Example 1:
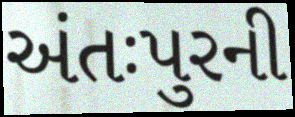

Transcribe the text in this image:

અંતઃપુરની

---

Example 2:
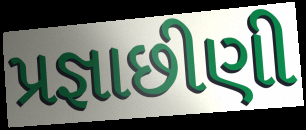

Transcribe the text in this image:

પ્રજ્ઞાછીણી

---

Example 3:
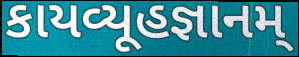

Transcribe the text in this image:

કાયવ્યૂહજ્ઞાનમ્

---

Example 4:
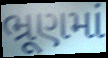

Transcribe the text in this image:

ભ્રૂણમાં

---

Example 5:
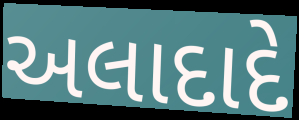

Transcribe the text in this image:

અલાદાદે